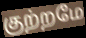
குற்றமே